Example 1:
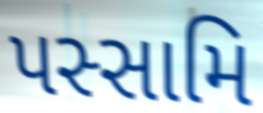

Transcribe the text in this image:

પસ્સામિ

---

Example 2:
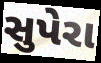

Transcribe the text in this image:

સુપેરા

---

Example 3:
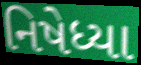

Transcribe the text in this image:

નિષેધ્યા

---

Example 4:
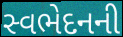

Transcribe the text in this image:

સ્વભેદનની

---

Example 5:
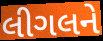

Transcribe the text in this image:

લીગલને